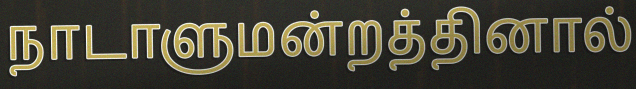
நாடாளுமன்றத்தினால்